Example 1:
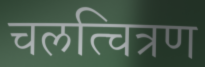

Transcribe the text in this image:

चलत्चित्रण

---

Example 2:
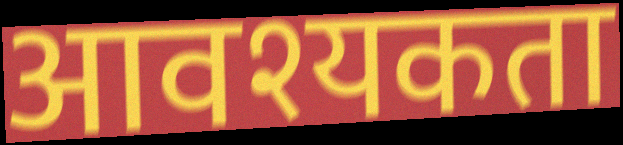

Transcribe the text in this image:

आवश्यकता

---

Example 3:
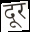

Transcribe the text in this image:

दूर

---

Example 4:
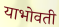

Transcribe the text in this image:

याभोवती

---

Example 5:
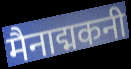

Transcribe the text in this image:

मैनाद्मकनी